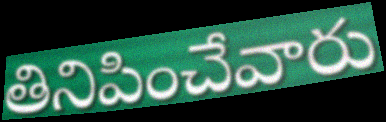
తినిపించేవారు